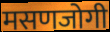
मसणजोगी